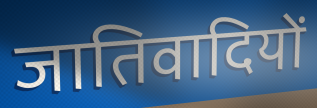
जातिवादियों